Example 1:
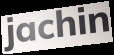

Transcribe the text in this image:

jachin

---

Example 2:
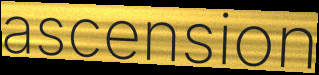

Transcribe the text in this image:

ascension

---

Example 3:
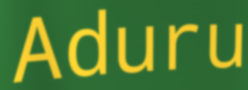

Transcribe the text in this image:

Aduru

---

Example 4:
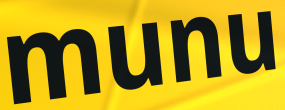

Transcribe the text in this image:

munu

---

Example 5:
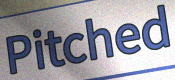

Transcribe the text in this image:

Pitched